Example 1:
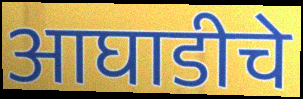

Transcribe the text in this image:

आघाडीचे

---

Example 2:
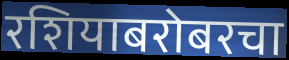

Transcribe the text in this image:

रशियाबरोबरचा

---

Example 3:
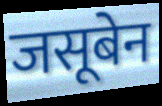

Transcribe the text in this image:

जसूबेन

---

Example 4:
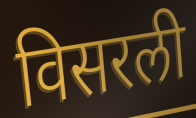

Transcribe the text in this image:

विसरली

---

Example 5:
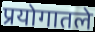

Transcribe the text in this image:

प्रयोगातले